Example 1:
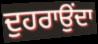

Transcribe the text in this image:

ਦੁਹਰਾਉਂਦਾ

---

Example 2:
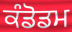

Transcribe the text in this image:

ਕੰਡੋਡਮ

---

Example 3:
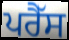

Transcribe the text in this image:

ਪਰੈੱਸ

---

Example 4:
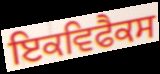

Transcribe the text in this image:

ਇਕਵਿਫੈਕਸ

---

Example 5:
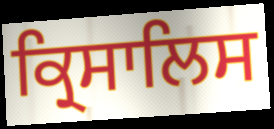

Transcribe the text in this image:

ਕ੍ਰਿਸਾਲਿਸ